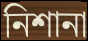
নিশানা